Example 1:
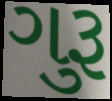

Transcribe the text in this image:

ગુરૂ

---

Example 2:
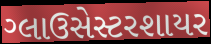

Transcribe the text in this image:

ગ્લાઉસેસ્ટરશાયર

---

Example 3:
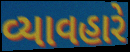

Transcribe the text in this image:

વ્યાવહારે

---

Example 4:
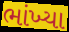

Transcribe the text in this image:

ભાંખ્યા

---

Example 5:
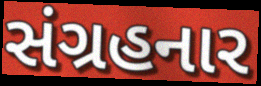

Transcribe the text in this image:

સંગ્રહનાર